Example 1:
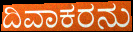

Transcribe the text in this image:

ದಿವಾಕರನು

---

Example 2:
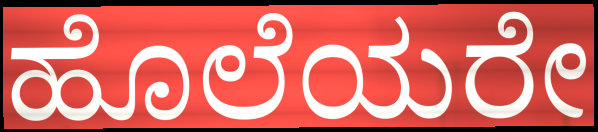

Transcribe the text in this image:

ಹೊಲೆಯರೇ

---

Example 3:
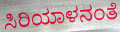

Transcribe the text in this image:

ಸಿರಿಯಾಳನಂತೆ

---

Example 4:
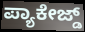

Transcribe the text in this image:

ಪ್ಯಾಕೇಜ್ಡ್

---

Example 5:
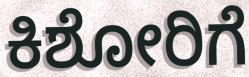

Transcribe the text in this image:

ಕಿಶೋರಿಗೆ